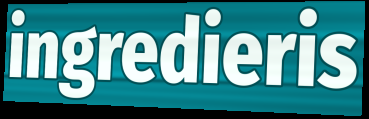
ingredieris